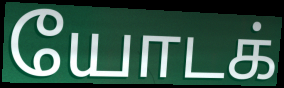
யோடக்